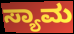
ಸ್ಯಾಮ